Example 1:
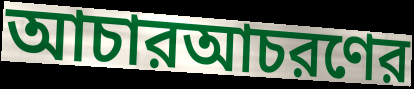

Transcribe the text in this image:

আচারআচরণের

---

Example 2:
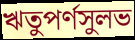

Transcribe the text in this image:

ঋতুপর্ণসুলভ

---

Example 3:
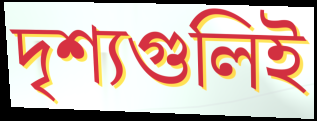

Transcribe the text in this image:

দৃশ্যগুলিই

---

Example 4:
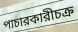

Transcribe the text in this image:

পাচারকারীচক্র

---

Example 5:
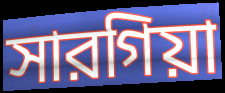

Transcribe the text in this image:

সারগিয়া